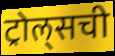
ट्रोल्सची